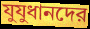
যুযুধানদের